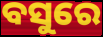
ବସୁରେ